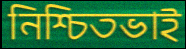
নিশ্চিতভাই